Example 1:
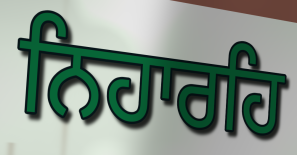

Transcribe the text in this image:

ਨਿਹਾਰਹਿ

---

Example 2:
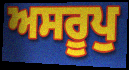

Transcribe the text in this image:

ਅਸਰੂਪੁ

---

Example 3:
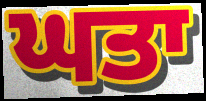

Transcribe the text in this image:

ਘਤਾ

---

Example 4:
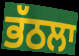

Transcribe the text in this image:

ਭੱਠਲਾ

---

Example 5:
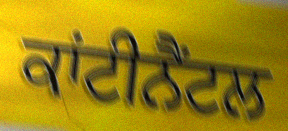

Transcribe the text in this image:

ਕਾਂਟੀਨੈਂਟਲ